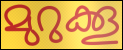
മുറുക്കൂ